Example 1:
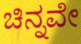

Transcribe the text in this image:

ಚಿನ್ನವೇ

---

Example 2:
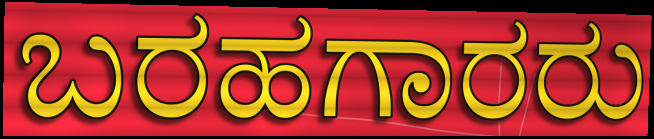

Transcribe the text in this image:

ಬರಹಗಾರರು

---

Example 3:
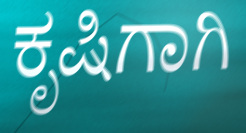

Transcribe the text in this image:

ಕೃಷಿಗಾಗಿ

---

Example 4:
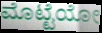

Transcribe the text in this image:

ಮೊಟ್ಟೆಯೋ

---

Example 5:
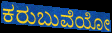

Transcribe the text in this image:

ಕರುಬುವೆಯೋ